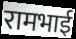
रामभाई